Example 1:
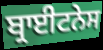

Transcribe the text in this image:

ਬ੍ਰਾਈਟਨੇਸ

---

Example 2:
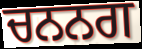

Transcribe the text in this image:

ਚਨਨਗ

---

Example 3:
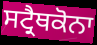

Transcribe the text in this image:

ਸਟ੍ਰੈਥਕੋਨਾ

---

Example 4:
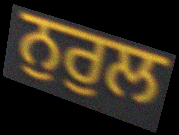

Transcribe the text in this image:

ਨੁਰੁਲ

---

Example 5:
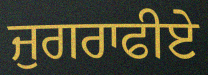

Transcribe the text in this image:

ਜੁਗਰਾਫੀਏ